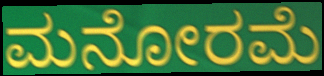
ಮನೋರಮೆ